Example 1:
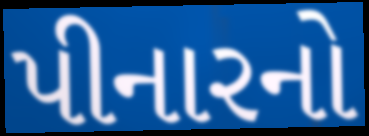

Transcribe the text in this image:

પીનારનો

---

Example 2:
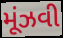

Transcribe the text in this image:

મૂંઝવી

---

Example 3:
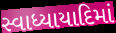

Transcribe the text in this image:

સ્વાધ્યાયાદિમાં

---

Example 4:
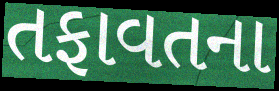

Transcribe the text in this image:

તફાવતના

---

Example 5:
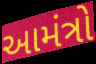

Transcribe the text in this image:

આમંત્રો